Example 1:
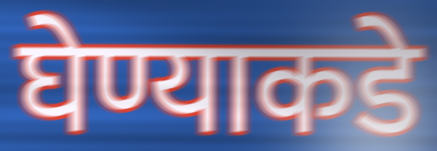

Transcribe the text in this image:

घेण्याकडे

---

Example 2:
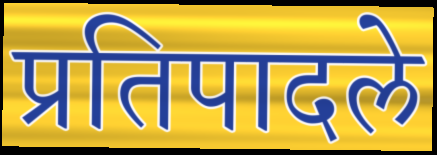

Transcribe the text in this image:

प्रतिपादले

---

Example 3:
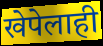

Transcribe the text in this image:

खेपेलाही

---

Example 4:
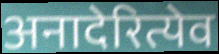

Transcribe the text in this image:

अनादेरित्येव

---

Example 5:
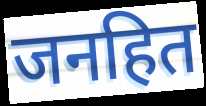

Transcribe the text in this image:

जनहित